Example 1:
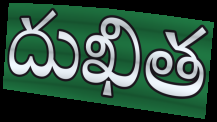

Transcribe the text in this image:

దుఖిత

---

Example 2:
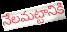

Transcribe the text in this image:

నేలమట్టానికి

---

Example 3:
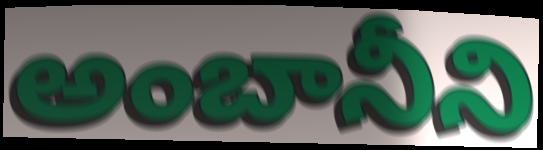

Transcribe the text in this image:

అంబానీని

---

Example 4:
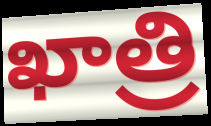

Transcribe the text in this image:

ఖాత్రి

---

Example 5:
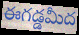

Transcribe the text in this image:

ఈగడ్డమీద